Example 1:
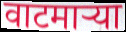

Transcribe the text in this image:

वाटमाऱ्या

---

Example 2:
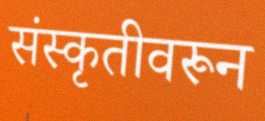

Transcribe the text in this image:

संस्कृतीवरून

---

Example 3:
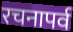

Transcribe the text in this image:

रचनापर्व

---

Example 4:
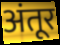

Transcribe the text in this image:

अंतूर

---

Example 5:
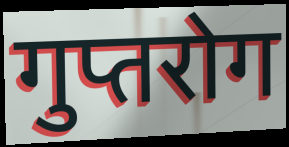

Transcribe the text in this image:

गुप्तरोग